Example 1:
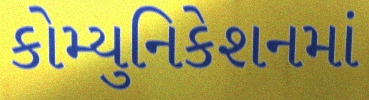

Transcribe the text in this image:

કોમ્યુનિકેશનમાં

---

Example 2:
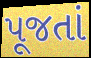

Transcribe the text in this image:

પૂજતાં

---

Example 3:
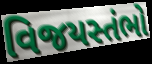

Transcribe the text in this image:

વિજયસ્તંભો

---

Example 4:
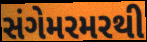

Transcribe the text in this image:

સંગેમરમરથી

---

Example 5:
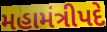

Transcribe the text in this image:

મહામંત્રીપદે